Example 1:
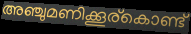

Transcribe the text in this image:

അഞ്ചുമണിക്കൂര്കൊണ്ട്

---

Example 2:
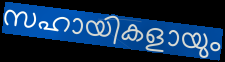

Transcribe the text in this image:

സഹായികളായും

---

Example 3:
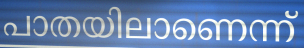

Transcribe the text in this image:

പാതയിലാണെന്ന്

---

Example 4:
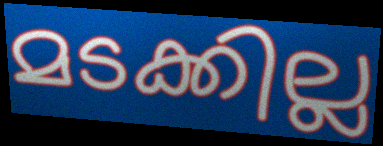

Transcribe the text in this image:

മടക്കില്ല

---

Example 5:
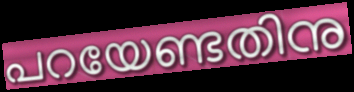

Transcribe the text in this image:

പറയേണ്ടതിനു